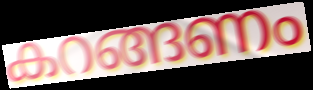
കറങ്ങണം